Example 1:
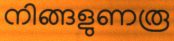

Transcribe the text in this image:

നിങ്ങളുണരൂ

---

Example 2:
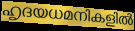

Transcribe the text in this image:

ഹൃദയധമനികളിൽ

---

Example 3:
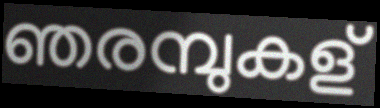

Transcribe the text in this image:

ഞരമ്പുകള്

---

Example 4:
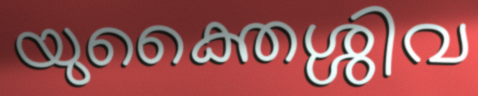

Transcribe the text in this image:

യുക്തൈശ്ശിവ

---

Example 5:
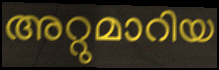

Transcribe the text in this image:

അറ്റുമാറിയ